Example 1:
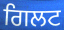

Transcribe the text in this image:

ਗਿਲਟ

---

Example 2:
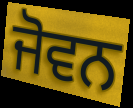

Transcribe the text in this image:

ਜੋਵਨ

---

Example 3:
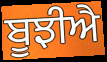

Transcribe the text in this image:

ਬੂਝੀਐ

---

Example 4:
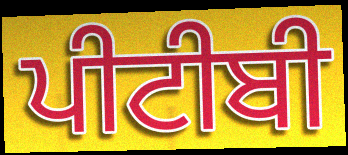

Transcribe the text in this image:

ਪੀਟੀਬੀ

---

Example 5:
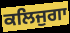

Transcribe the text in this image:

ਕਲਿਜੁਗਾ